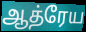
ஆத்ரேய